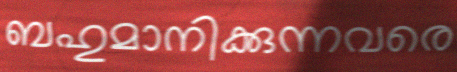
ബഹുമാനിക്കുന്നവരെ